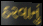
ઠરવાનું